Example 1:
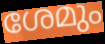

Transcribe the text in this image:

ശേമും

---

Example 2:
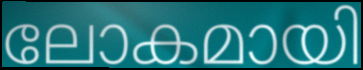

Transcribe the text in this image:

ലോകമായി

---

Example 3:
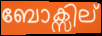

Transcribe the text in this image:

ബോക്സില്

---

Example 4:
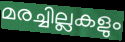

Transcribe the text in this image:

മരച്ചില്ലകളും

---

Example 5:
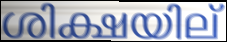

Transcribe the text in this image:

ശിക്ഷയില്